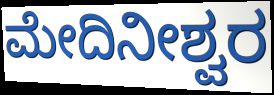
ಮೇದಿನೀಶ್ವರ